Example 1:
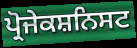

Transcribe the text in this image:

ਪ੍ਰੋਜੇਕਸ਼ਨਿਸਟ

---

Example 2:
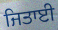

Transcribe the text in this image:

ਜਿਤਾਈ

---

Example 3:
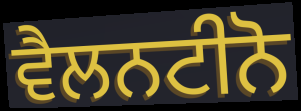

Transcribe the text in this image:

ਵੈਲਨਟੀਨੋ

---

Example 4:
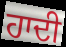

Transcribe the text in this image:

ਹਾਦੀ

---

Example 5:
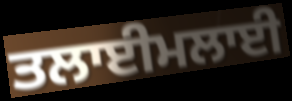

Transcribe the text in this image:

ਤਲਾਈਮਲਾਈ